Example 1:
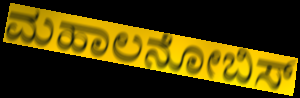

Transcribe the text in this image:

ಮಹಾಲನೋಬಿಸ್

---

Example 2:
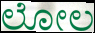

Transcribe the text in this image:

ಲೋಲ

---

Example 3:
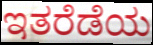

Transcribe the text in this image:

ಇತರೆಡೆಯ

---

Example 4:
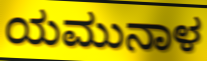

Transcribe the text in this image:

ಯಮುನಾಳ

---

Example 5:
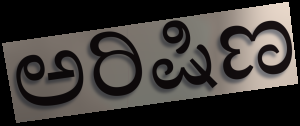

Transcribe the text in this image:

ಅರಿಷಿಣ